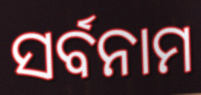
ସର୍ବନାମ